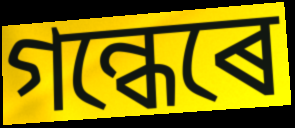
গন্ধেৰে